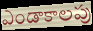
ఎండాకాలపు